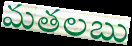
మతలబు